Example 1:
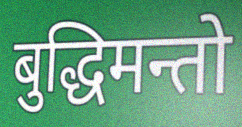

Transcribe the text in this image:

बुद्धिमन्तो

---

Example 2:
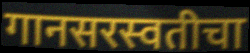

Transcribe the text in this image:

गानसरस्वतीचा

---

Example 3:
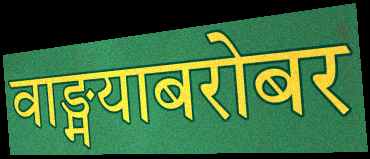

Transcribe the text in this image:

वाङ्मयाबरोबर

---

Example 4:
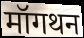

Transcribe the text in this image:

मॉगथन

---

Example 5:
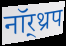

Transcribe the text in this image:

नॉर्थ्रप